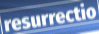
resurrectio